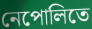
নেপোলিতে